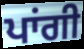
ਪਾਂਗੀ